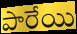
పారేయి